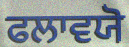
ਫਲਾਵਯੋ